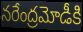
నరేంద్రమోడీకి